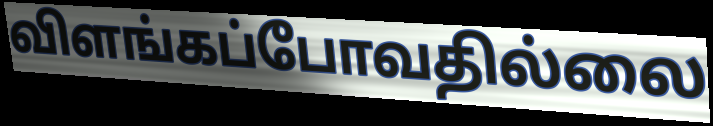
விளங்கப்போவதில்லை